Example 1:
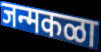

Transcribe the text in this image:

जन्मकळा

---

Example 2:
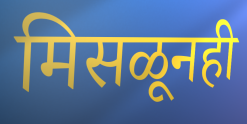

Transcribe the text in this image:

मिसळूनही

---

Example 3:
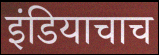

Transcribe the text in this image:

इंडियाचाच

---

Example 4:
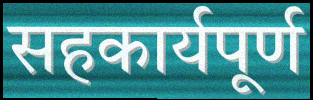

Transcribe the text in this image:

सहकार्यपूर्ण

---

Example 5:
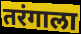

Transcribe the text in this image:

तरंगाला